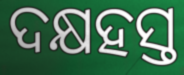
ଦକ୍ଷହସ୍ତ